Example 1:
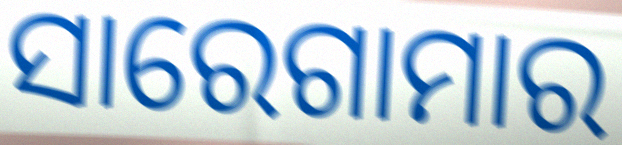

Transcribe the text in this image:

ସାରେଗାମାର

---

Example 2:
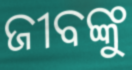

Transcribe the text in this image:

ଜୀବଙ୍କୁ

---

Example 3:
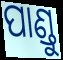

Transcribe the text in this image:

ପାଣ୍ଡୁ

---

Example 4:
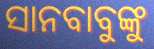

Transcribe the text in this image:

ସାନବାବୁଙ୍କୁ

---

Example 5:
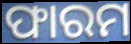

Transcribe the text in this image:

ଫାରମ